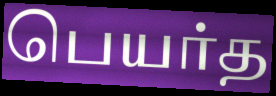
பெயர்த